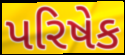
પરિષેક